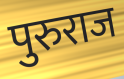
पुरुराज